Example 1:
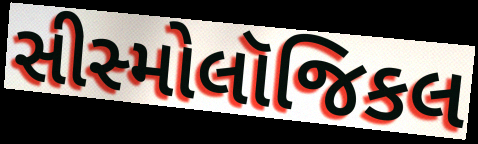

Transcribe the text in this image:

સીસ્મોલૉજિકલ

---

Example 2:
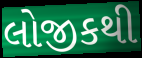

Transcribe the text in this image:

લોજીકથી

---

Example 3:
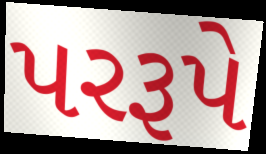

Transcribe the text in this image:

પરરૂપે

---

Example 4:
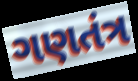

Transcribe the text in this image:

ગણતંત્ર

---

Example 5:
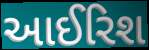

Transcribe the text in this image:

આઈરિશ